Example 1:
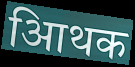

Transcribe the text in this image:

आिथक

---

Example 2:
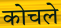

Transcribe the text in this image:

कोचले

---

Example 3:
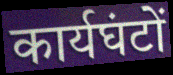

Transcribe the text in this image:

कार्यघंटों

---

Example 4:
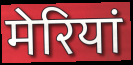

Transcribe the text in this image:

मेरियां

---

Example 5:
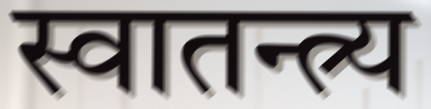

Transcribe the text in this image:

स्वातन्त्र्य